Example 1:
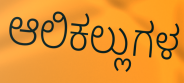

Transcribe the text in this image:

ಆಲಿಕಲ್ಲುಗಳ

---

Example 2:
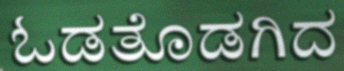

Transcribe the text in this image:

ಓಡತೊಡಗಿದ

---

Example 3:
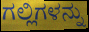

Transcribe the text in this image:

ಗಲ್ಲಿಗಳನ್ನು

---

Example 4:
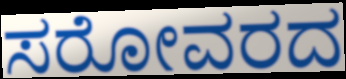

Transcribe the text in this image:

ಸರೋವರದ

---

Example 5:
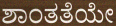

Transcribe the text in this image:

ಶಾಂತತೆಯೇ